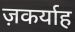
ज़कर्याह